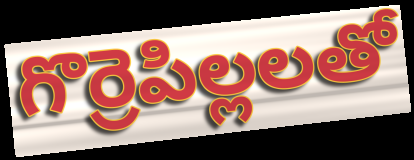
గొర్రెపిల్లలతో